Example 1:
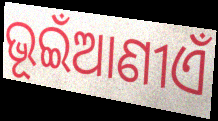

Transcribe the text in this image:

ଭୂଇଁଆଣୀଏଁ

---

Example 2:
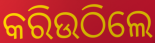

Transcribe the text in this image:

କରିଉଠିଲେ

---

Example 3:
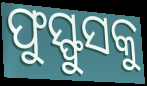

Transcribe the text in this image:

ଫୁସ୍ଫୁସକୁ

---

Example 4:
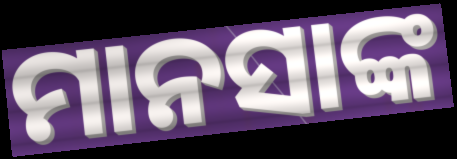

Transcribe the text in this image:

ମାନସାଙ୍କ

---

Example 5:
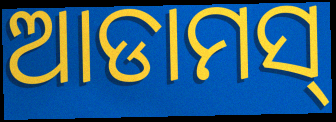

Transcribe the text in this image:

ଆଡାମସ୍